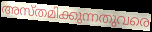
അസ്തമിക്കുന്നതുവരെ